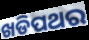
ଖଡିପଥର